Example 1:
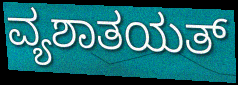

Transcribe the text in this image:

ವ್ಯಶಾತಯತ್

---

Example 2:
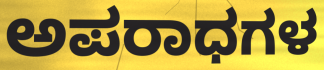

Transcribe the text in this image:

ಅಪರಾಧಗಳ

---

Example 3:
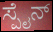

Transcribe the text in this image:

ಸ್ಪೈನ್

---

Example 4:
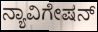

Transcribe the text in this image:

ನ್ಯಾವಿಗೇಷನ್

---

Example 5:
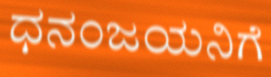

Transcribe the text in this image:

ಧನಂಜಯನಿಗೆ